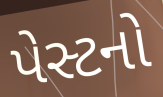
પેસ્ટનો